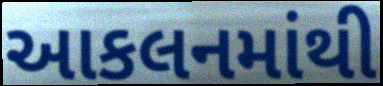
આકલનમાંથી